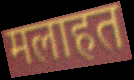
मलाहत